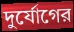
দুর্যোগের